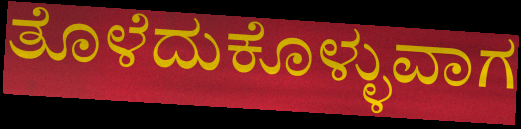
ತೊಳೆದುಕೊಳ್ಳುವಾಗ